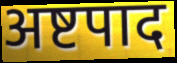
अष्टपाद